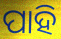
ପାହି